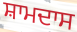
ਸ਼ਾਮਦਾਸ